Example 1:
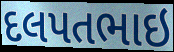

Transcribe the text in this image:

દલપતભાઇ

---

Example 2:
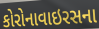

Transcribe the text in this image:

કોરોનાવાઇરસના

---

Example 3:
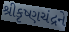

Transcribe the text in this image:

શ્રીકૃષ્ણચંદ્રને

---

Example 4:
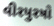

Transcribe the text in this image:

વીરપુરષો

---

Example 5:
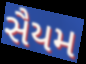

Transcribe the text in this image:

સૈયમ